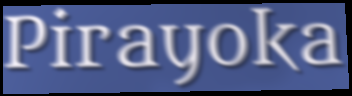
Pirayoka